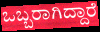
ಒಬ್ಬರಾಗಿದ್ದಾರೆ